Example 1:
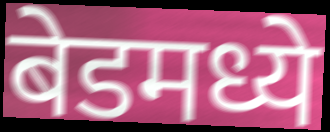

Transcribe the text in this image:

बेडमध्ये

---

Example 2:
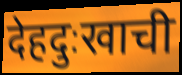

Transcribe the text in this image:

देहदुःखाची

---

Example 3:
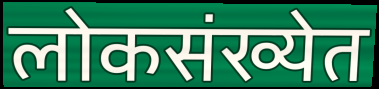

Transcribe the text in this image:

लोकसंख्येत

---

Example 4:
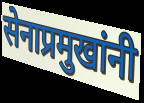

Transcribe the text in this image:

सेनाप्रमुखांनी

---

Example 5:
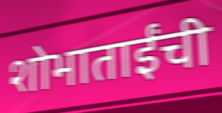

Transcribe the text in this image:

शोभाताईंची